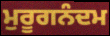
ਮੁਰੂਗਨੰਦਮ